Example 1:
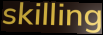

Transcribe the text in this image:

skilling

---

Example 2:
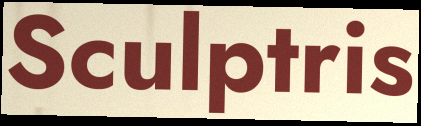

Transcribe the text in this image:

Sculptris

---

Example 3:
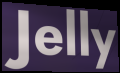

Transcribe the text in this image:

Jelly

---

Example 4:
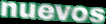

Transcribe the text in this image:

nuevos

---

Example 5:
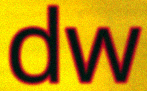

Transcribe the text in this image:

dw